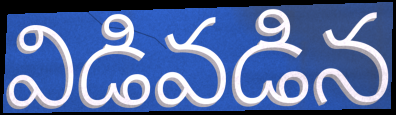
విడివడిన